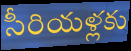
సీరియళ్లకు